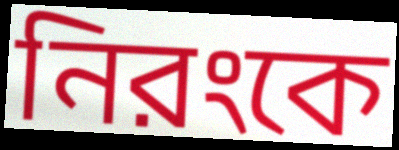
নিরংকে